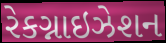
રેકગ્નાઇઝેશન